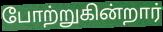
போற்றுகின்றார்